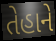
તેહાને